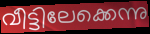
വീട്ടിലേക്കെന്നു